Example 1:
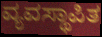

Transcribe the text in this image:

ವ್ಯವಸ್ಥಾಪಿತ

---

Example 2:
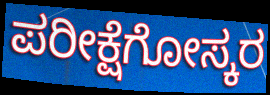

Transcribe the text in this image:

ಪರೀಕ್ಷೆಗೋಸ್ಕರ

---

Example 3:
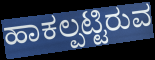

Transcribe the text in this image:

ಹಾಕಲ್ಪಟ್ಟಿರುವ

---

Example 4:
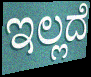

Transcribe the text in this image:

ಇಲ್ಲದೆ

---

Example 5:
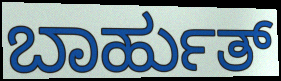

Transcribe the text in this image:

ಬಾರ್ಹುತ್